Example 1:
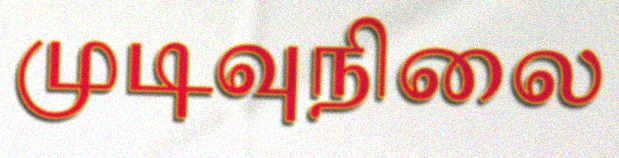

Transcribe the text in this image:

முடிவுநிலை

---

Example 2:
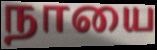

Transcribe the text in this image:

நாயை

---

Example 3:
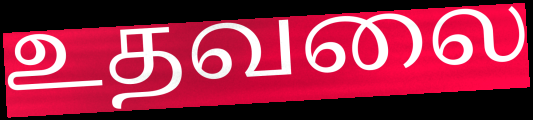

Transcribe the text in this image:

உதவலை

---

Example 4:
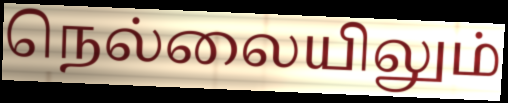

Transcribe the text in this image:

நெல்லையிலும்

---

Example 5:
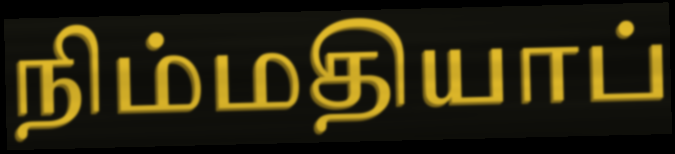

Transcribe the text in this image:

நிம்மதியாப்